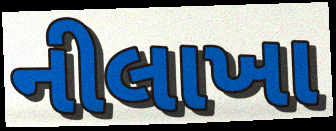
નીલાખા